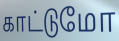
காட்டுமோ